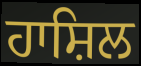
ਹਾਸ਼ਿਲ